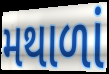
મથાળાં